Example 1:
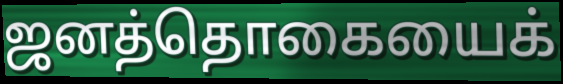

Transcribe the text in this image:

ஜனத்தொகையைக்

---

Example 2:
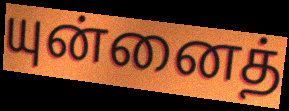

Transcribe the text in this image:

யுன்னைத்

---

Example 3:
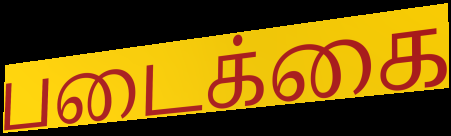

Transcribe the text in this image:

படைக்கை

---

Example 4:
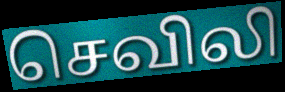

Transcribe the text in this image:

செவிலி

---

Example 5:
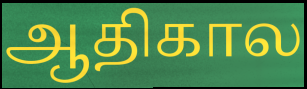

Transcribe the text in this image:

ஆதிகால